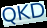
QKD